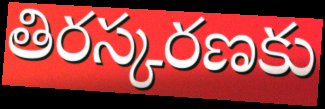
తిరస్కరణకు